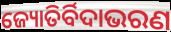
ଜ୍ୟୋତିର୍ବିଦାଭରଣ